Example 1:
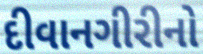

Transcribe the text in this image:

દીવાનગીરીનો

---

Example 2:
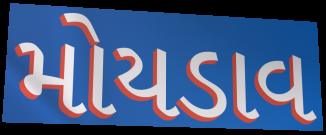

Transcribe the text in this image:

મોયડાવ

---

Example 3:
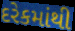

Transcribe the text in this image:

દરેકમાંથી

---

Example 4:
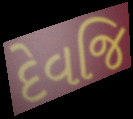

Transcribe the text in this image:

દેવજિ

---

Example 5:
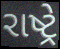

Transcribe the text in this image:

રાષ્ટ્રે